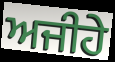
ਅਜੀਹੇ